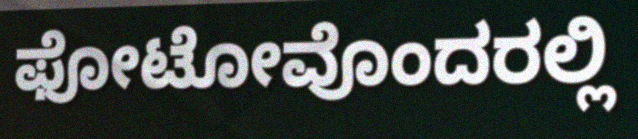
ಫೋಟೋವೊಂದರಲ್ಲಿ